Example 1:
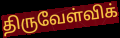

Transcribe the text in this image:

திருவேள்விக்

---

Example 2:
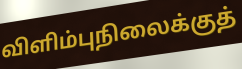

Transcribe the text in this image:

விளிம்புநிலைக்குத்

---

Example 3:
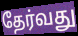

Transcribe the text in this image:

தேர்வது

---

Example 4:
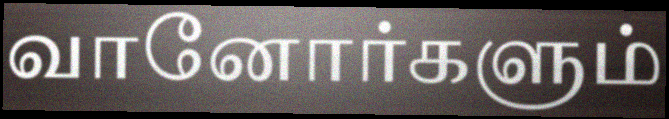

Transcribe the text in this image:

வானோர்களும்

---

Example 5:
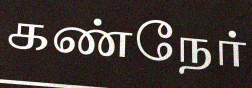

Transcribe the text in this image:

கண்நேர்